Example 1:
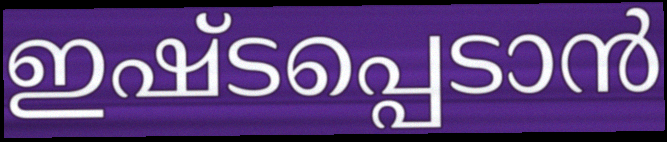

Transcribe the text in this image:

ഇഷ്ടപ്പെടാൻ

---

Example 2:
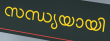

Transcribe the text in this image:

സന്ധ്യയായി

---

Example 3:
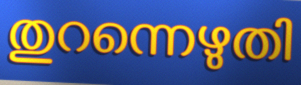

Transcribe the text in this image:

തുറന്നെഴുതി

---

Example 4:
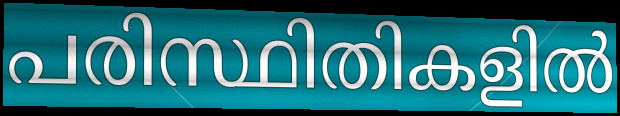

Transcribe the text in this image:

പരിസ്ഥിതികളിൽ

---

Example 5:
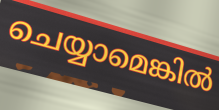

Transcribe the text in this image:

ചെയ്യാമെങ്കിൽ